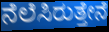
ನೆಲೆಸಿರುತ್ತೇನೆ